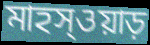
মাহস্ওয়াড়